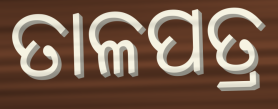
ତାଳପତ୍ର